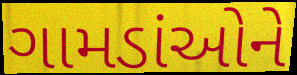
ગામડાંઓને